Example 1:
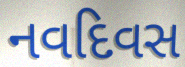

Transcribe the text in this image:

નવદિવસ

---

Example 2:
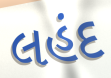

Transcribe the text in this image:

લહંદ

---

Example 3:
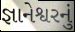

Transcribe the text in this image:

જ્ઞાનેશ્વરનું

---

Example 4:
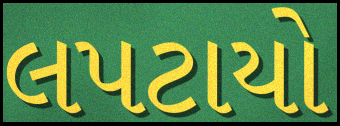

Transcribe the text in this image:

લપટાયો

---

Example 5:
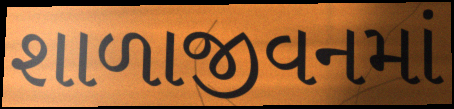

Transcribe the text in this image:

શાળાજીવનમાં